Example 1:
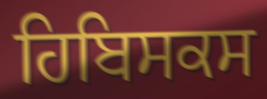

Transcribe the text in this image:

ਹਿਬਿਸਕਸ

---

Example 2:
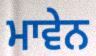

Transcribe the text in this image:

ਮਾਵੇਨ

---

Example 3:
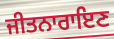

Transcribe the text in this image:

ਜੀਤਨਾਰਾਇਣ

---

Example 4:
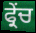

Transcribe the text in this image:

ਫ੍ਰੇੰਚ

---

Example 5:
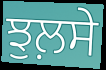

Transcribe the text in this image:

ਝੁਲ਼ਸੇ